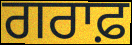
ਗਰਾਫ਼